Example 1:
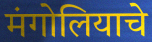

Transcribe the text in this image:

मंगोलियाचे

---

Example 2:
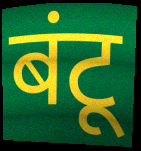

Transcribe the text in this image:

बंटू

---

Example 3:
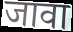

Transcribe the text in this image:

जावा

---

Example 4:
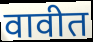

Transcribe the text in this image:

वावीत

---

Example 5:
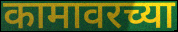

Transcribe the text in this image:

कामावरच्या